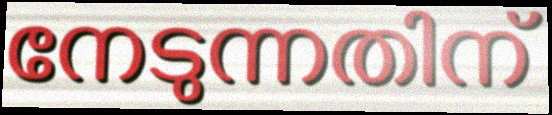
നേടുന്നതിന്